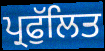
ਪ੍ਰਫੁੱਲਿਤ